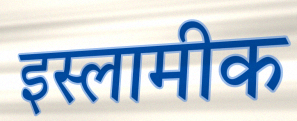
इस्लामीक